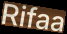
Rifaa